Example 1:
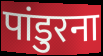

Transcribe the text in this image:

पांडुरना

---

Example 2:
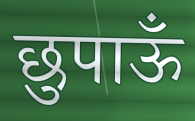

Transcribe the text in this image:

छुपाऊँ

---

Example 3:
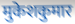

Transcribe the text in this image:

मुकेशकुमार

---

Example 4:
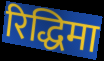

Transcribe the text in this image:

रिद्धिमा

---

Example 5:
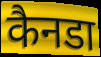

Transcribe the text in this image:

कैनडा